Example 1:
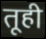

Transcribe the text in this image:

तूही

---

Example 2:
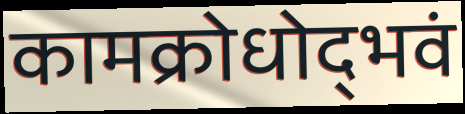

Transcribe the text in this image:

कामक्रोधोद्भवं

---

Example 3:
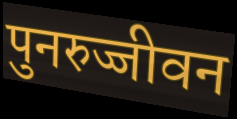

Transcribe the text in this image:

पुनरुज्जीवन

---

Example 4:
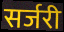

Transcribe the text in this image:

सर्जरी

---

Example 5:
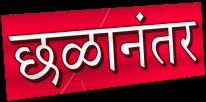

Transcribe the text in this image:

छळानंतर